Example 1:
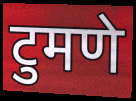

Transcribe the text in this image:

टुमणे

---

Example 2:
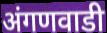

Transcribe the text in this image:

अंगणवाडी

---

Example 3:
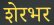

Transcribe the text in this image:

शेरभर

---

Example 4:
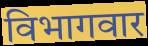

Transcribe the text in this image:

विभागवार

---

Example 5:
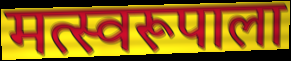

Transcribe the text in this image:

मत्स्वरूपाला